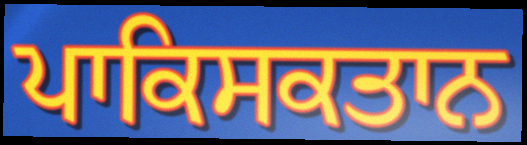
ਪਾਕਿਸਕਤਾਨ